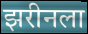
झरीनला